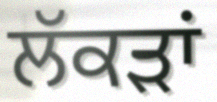
ਲੱਕੜਾਂ